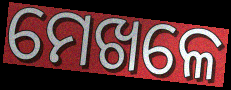
ମେଖଳେ